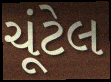
ચૂંટેલ